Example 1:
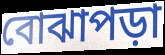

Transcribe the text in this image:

বোঝাপড়া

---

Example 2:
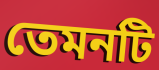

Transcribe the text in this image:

তেমনটি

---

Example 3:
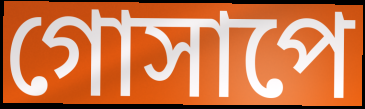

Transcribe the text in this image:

গোসাপে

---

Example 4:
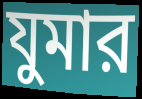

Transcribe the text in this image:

যুমার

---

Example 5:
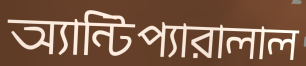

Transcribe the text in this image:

অ্যান্টিপ্যারালাল